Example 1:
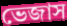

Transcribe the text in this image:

ভেজাস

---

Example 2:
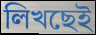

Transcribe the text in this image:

লিখছেই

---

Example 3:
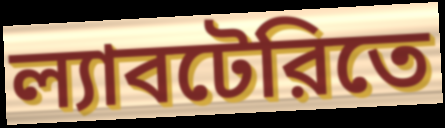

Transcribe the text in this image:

ল্যাবটেরিতে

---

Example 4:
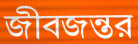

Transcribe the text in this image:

জীবজন্তর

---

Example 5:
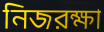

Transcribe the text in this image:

নিজরক্ষা